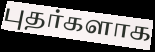
புதர்களாக